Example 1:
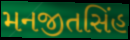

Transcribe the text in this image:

મનજીતસિંહ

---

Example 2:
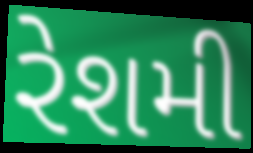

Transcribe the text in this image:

રેશમી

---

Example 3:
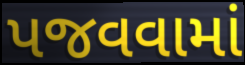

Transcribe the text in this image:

પજવવામાં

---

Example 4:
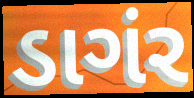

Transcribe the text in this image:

ડાગંર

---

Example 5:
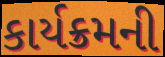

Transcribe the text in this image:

કાર્યક્રમની